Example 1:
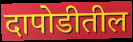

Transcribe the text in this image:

दापोडीतील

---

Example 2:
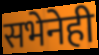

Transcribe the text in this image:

सभेनेही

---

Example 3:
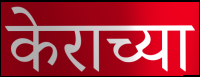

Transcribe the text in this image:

केराच्या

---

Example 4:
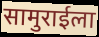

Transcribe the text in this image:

सामुराईला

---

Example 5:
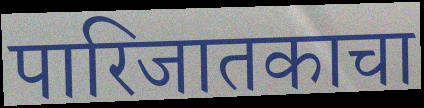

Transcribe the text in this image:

पारिजातकाचा